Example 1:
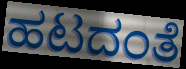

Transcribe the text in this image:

ಹಟದಂತೆ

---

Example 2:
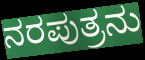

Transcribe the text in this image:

ನರಪುತ್ರನು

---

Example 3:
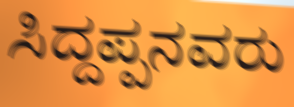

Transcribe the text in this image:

ಸಿದ್ದಪ್ಪನವರು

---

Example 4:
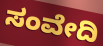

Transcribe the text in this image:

ಸಂವೇದಿ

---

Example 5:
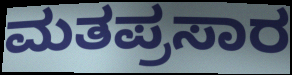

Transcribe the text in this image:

ಮತಪ್ರಸಾರ